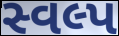
સ્વલ્પ